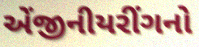
એંજીનીયરીંગનો